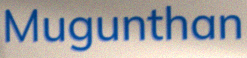
Mugunthan